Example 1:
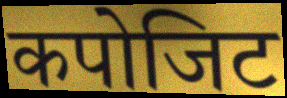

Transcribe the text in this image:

कपोजिट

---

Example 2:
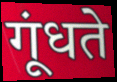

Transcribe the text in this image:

गूंधते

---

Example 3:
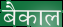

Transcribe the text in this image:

बैकाल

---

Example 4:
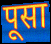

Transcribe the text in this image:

पूसा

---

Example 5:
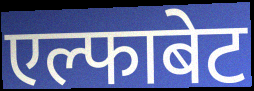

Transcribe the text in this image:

एल्फाबेट